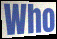
Who